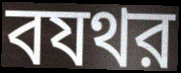
বযথর